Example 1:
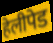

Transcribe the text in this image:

हेलीपेड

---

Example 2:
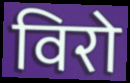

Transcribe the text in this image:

विरो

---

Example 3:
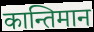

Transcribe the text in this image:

कान्तिमान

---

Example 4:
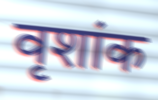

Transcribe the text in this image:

वृशांक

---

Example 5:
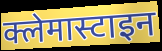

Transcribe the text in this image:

क्लेमास्टाइन